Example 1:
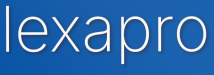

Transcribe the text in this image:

lexapro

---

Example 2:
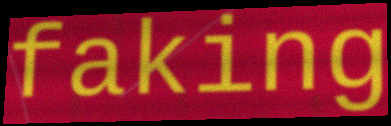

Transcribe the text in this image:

faking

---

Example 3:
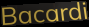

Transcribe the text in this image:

Bacardi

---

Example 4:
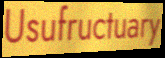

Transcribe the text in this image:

Usufructuary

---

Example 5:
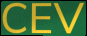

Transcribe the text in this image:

CEV